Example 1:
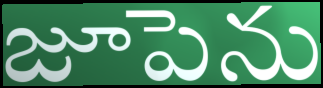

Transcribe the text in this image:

జూపెను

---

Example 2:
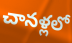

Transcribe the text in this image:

చానళ్లలో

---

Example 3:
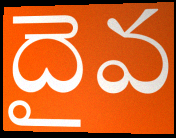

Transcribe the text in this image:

దైవ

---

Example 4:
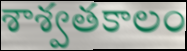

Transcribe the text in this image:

శాశ్వతకాలం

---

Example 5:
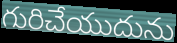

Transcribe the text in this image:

గురిచేయుదును